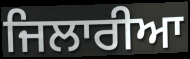
ਜਿਲਾਰੀਆ